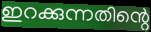
ഇറക്കുന്നതിന്റെ